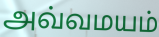
அவ்வமயம்